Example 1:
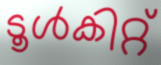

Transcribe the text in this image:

ടൂൾകിറ്റ്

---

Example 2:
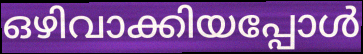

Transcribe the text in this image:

ഒഴിവാക്കിയപ്പോൾ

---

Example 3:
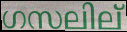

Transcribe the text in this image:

ഗസലില്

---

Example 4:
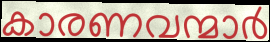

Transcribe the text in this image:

കാരണവന്മാർ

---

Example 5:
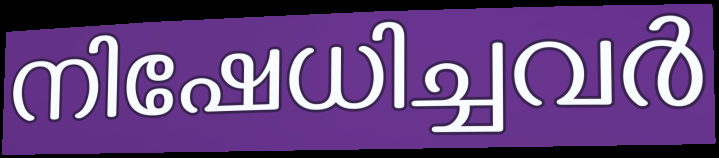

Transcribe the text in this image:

നിഷേധിച്ചവർ